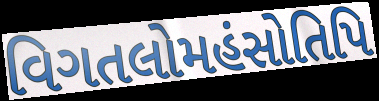
વિગતલોમહંસોતિપિ